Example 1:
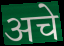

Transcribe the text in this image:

अचे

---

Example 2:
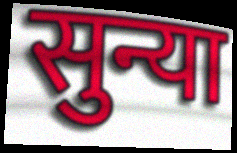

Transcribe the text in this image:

सुन्या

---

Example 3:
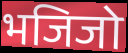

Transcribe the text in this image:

भजिजो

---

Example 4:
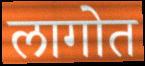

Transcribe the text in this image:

लागोत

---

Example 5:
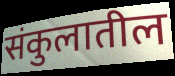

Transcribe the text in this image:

संकुलातील